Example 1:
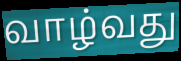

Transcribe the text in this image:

வாழ்வது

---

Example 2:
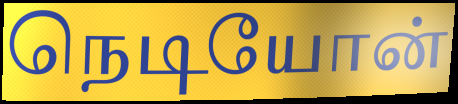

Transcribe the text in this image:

நெடியோன்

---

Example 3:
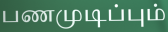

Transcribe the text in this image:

பணமுடிப்பும்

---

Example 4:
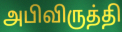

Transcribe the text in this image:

அபிவிருத்தி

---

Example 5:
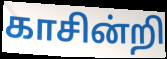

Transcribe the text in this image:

காசின்றி